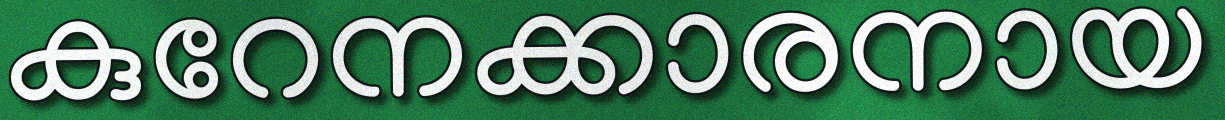
കുറേനക്കാരനായ